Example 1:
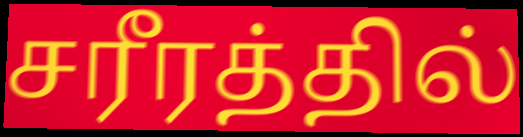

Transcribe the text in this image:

சரீரத்தில்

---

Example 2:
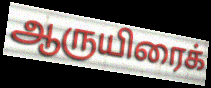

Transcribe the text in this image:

ஆருயிரைக்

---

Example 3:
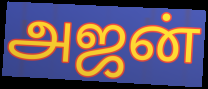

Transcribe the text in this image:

அஜன்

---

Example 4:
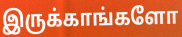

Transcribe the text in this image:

இருக்காங்களோ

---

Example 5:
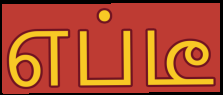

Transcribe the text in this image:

எப்டீ